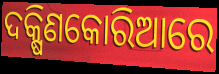
ଦକ୍ଷିଣକୋରିଆରେ